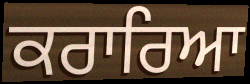
ਕਰਾਰਿਆ